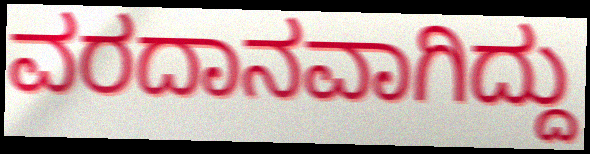
ವರದಾನವಾಗಿದ್ದು